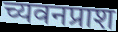
च्यवनप्राश